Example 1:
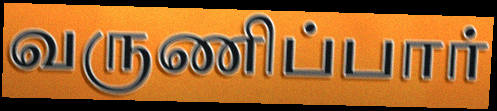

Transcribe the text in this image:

வருணிப்பார்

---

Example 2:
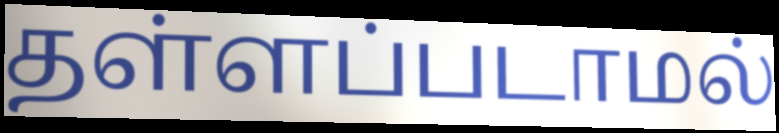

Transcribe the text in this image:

தள்ளப்படாமல்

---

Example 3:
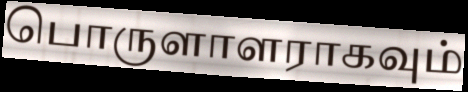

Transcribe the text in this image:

பொருளாளராகவும்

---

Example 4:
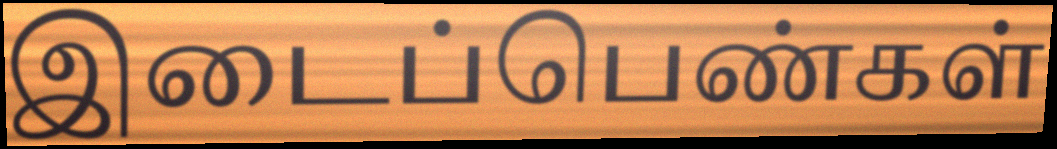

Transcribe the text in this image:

இடைப்பெண்கள்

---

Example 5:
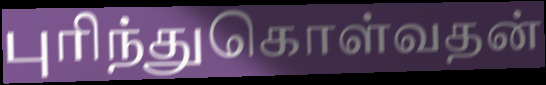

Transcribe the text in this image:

புரிந்துகொள்வதன்